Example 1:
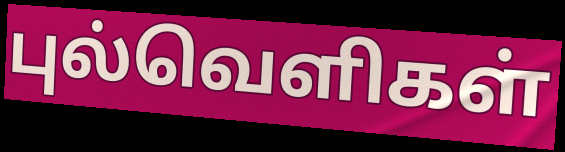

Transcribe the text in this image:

புல்வெளிகள்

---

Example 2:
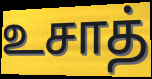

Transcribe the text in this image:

உசாத்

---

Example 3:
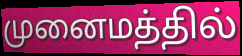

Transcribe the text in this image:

முனைமத்தில்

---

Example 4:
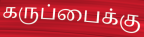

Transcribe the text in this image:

கருப்பைக்கு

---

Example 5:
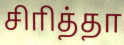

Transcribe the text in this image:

சிரித்தா